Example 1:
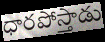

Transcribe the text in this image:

ధారపోస్తాడు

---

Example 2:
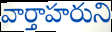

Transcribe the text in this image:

వార్తాహరుని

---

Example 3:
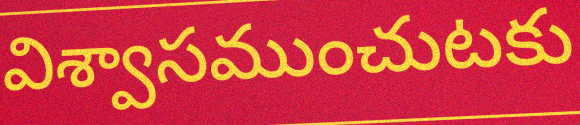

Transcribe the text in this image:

విశ్వాసముంచుటకు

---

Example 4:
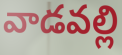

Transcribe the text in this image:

వాడవల్లి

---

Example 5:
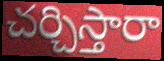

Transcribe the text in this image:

చర్చిస్తారా